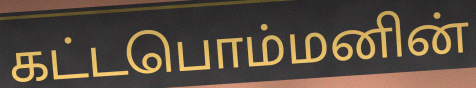
கட்டபொம்மனின்